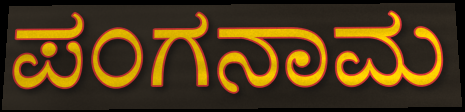
ಪಂಗನಾಮ